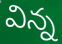
విన్న